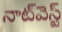
నాట్‌వెస్ట్